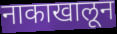
नाकाखालून